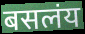
बसलंय